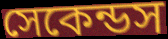
সেকেন্ডস